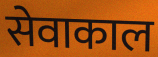
सेवाकाल